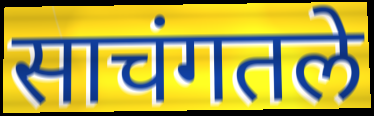
साचंगतले